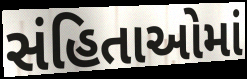
સંહિતાઓમાં